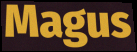
Magus